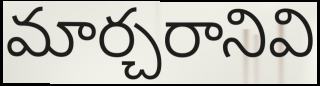
మార్చరానివి